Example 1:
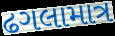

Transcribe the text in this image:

ઢગલામાત્ર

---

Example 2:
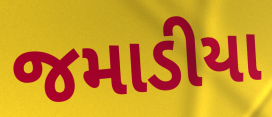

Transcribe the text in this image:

જમાડીયા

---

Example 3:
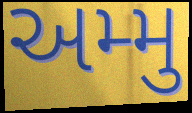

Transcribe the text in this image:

અમ્મુ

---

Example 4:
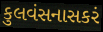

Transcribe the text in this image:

કુલવંસનાસકરં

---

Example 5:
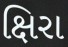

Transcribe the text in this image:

ક્ષિરા